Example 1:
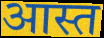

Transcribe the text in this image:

आस्त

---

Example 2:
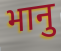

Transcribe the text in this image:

भानु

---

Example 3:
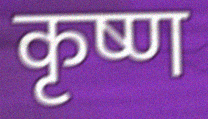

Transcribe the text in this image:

कृष्ण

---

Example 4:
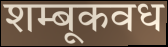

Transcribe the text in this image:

शम्बूकवध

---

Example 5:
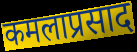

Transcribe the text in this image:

कमलाप्रसाद